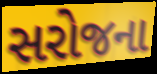
સરોજના